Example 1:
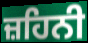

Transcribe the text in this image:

ਜ਼ਹਿਨੀ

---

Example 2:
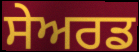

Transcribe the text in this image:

ਸੇਅਰਡ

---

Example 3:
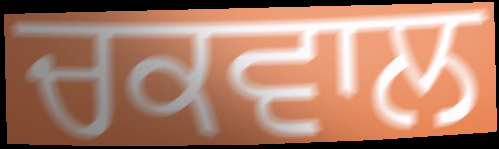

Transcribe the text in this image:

ਚਕਵਾਲ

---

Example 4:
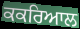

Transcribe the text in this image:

ਕਕਰਿਆਲ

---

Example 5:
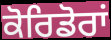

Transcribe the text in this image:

ਕੋਰਿਡੋਰਾਂ